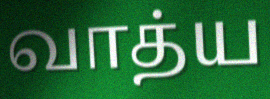
வாத்ய